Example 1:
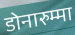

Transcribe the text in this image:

डोनारुम्मा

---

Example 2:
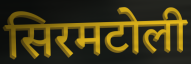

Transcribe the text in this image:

सिरमटोली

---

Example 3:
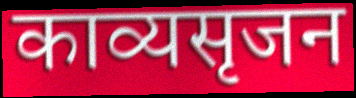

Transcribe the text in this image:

काव्यसृजन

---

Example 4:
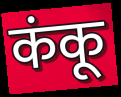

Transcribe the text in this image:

कंकू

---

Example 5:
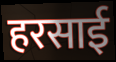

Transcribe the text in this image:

हरसाई